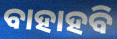
ବାହାହବି